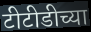
टीटीडीच्या